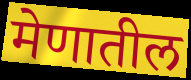
मेणातील